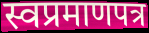
स्वप्रमाणपत्र